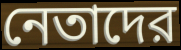
নেতাদের